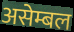
असेम्बल